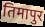
तिमापुर